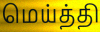
மெய்த்தி